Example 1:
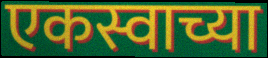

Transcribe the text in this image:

एकस्वाच्या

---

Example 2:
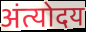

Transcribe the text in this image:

अंत्योदय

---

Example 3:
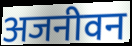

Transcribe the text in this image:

अजनीवन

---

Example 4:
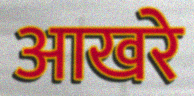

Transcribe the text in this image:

आखरे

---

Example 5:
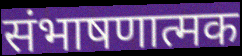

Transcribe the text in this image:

संभाषणात्मक